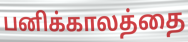
பனிக்காலத்தை